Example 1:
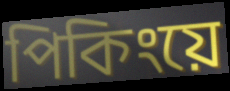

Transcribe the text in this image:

পিকিংয়ে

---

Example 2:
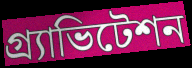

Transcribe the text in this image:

গ্র্যাভিটেশন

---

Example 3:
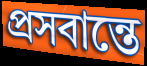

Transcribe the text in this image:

প্রসবান্তে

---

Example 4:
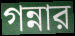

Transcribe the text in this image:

গন্নার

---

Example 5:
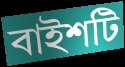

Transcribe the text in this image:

বাইশটি